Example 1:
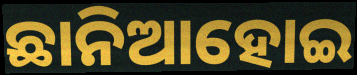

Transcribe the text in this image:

ଛାନିଆହୋଇ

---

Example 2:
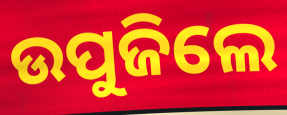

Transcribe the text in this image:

ଉପୁଜିଲେ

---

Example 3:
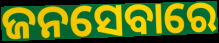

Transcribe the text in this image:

ଜନସେବାରେ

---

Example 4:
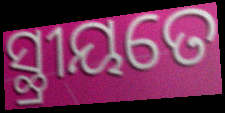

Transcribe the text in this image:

ସ୍ଥ୍ରୀୟତେ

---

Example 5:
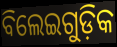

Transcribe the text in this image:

ବିଲେଇଗୁଡ଼ିକ